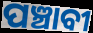
ପଞ୍ଚାବୀ